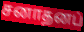
சனாதனப்